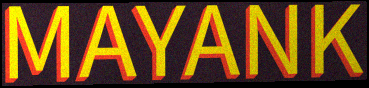
MAYANK